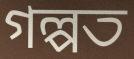
গল্পত